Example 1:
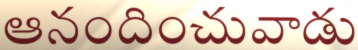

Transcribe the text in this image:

ఆనందించువాడు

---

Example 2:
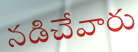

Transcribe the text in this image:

నడిచేవారు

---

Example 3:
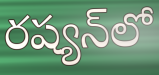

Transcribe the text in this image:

రష్యన్‌లో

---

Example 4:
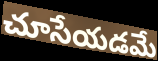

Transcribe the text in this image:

చూసేయడమే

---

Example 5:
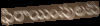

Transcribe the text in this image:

ఫిరాయింపులకు